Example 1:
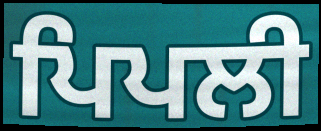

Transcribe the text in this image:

ਪਿਪਲੀ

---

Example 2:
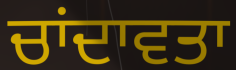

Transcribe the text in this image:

ਚਾਂਦਾਵਤਾ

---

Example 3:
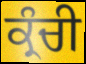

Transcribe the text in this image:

ਕ੍ਰੰਚੀ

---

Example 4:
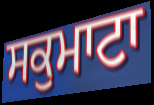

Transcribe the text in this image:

ਸਕੁਮਾਟਾ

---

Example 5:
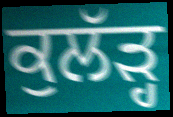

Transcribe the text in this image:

ਕੁਲੱੜ੍ਹ